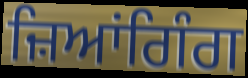
ਜ਼ਿਆਂਗਿੰਗ